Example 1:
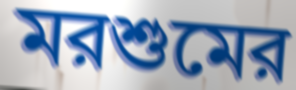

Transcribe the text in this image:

মরশুমের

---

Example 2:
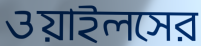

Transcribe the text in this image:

ওয়াইলসের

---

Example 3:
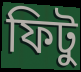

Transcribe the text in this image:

ফিটু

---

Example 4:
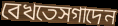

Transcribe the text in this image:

বেখতেসগাদেন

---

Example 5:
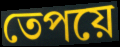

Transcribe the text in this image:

তেপয়ে